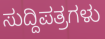
ಸುದ್ದಿಪತ್ರಗಳು